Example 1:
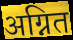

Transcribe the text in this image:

अग्नित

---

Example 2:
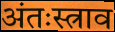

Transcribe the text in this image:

अंतःस्त्राव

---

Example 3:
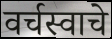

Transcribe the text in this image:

वर्चस्वाचे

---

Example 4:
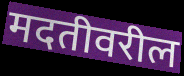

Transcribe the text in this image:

मदतीवरील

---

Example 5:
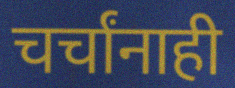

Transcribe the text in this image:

चर्चांनाही